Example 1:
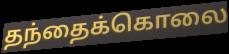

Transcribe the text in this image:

தந்தைக்கொலை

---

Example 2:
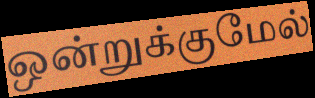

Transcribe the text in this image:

ஒன்றுக்குமேல்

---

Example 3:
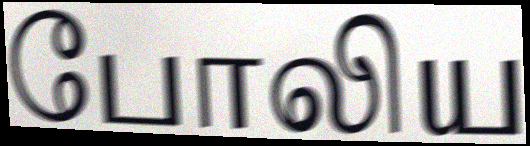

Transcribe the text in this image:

போலிய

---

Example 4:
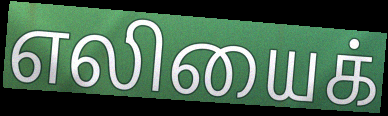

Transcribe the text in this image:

எலியைக்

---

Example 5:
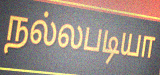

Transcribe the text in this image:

நல்லபடியா